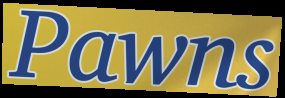
Pawns